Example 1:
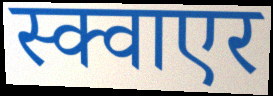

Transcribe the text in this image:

स्क्वाएर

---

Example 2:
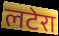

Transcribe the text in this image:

लटेरा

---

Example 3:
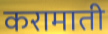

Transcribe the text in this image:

करामाती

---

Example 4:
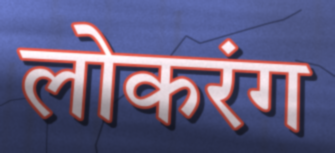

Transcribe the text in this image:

लोकरंग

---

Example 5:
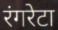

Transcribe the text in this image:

रंगरेटा